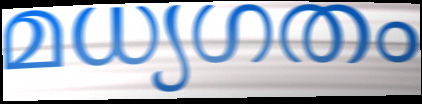
മധ്യഗതം